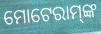
ମୋଟେରାମ୍‌ଙ୍କ